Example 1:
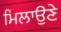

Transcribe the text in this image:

ਮਿਲਾਉਣੇ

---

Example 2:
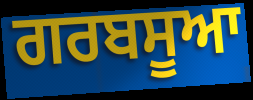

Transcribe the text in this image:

ਗਰਬਸੂਆ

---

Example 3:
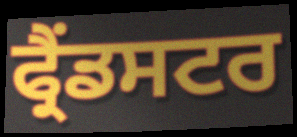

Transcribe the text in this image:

ਫ੍ਰੈਂਡਸਟਰ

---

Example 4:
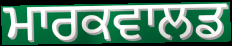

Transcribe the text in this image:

ਮਾਰਕਵਾਲਡ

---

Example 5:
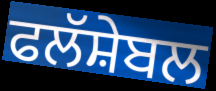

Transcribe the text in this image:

ਫਲੱਸ਼ੇਬਲ